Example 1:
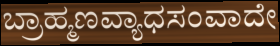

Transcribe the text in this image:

ಬ್ರಾಹ್ಮಣವ್ಯಾಧಸಂವಾದೇ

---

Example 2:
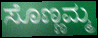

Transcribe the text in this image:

ಸೊಣ್ಣಮ್ಮ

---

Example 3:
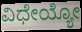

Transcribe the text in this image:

ವಿಧೇಯ್ಯೋ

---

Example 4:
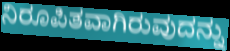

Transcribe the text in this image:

ನಿರೂಪಿತವಾಗಿರುವುದನ್ನು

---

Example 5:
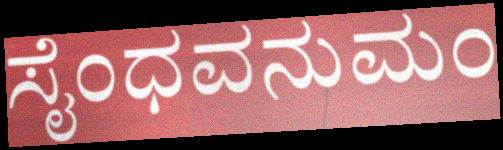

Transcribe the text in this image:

ಸೈಂಧವನುಮಂ